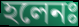
হলেনঃ